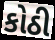
કોઠી